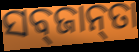
ସବ୍‌ଜାନ୍‌ତା